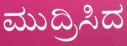
ಮುದ್ರಿಸಿದ